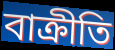
বাক্রীতি